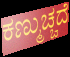
ಕಣ್ಮುಚ್ಚದೆ